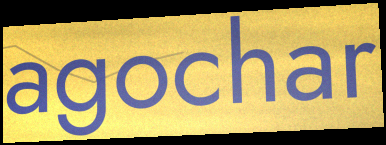
agochar